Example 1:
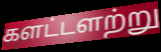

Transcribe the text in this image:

களட்டளற்று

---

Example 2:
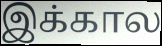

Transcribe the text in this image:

இக்கால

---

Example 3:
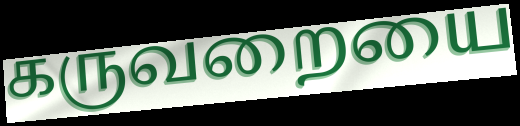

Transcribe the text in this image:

கருவறையை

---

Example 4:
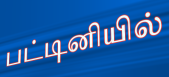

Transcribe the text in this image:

பட்டினியில்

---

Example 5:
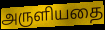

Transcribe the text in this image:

அருளியதை